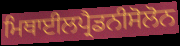
ਮਿਥਾਈਲਪ੍ਰੈਡਨੀਸੋਲੋਨ